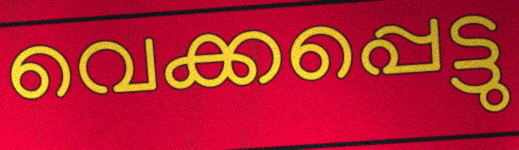
വെക്കപ്പെട്ടു